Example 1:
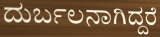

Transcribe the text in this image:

ದುರ್ಬಲನಾಗಿದ್ದರೆ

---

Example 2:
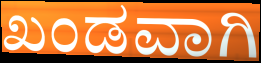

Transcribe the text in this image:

ಖಂಡವಾಗಿ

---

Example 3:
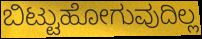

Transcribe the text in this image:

ಬಿಟ್ಟುಹೋಗುವುದಿಲ್ಲ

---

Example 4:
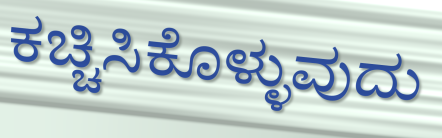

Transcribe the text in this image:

ಕಚ್ಚಿಸಿಕೊಳ್ಳುವುದು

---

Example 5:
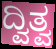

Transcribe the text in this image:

ದ್ವಿತ್ವ